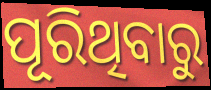
ପୂରିଥିବାରୁ